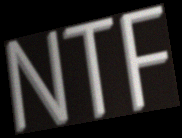
NTF